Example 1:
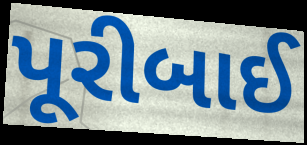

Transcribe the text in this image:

પૂરીબાઈ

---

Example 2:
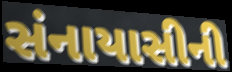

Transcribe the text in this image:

સંનાયાસીની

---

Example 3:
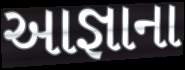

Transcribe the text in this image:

આજ્ઞાના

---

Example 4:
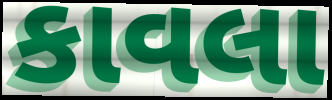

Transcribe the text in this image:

કાવલા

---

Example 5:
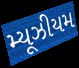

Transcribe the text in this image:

મ્યૂઝીયમ